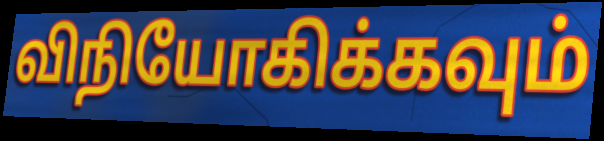
விநியோகிக்கவும்